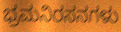
ಭ್ರಮನಿರಸನಗಳು